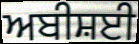
ਅਬੀਸ਼ਈ